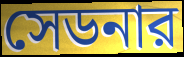
সেডনার